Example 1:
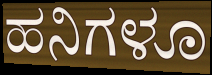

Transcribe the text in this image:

ಹನಿಗಳೂ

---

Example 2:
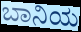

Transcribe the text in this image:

ಬಾನಿಯ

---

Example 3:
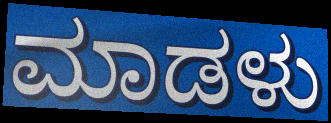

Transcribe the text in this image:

ಮಾಡಳು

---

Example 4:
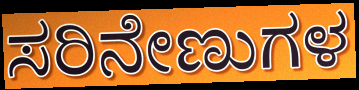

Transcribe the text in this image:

ಸರಿನೇಣುಗಳ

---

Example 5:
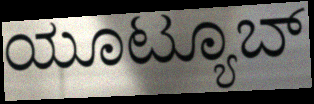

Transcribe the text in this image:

ಯೂಟ್ಯೂಬ್